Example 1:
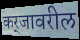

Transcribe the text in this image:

कर्जावरील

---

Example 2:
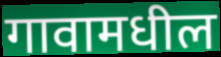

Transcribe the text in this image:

गावामधील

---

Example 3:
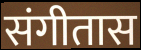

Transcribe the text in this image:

संगीतास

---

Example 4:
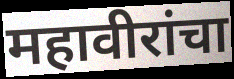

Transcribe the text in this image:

महावीरांचा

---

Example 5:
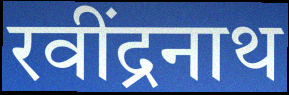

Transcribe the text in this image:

रवींद्रनाथ